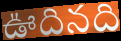
ఊదినది